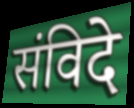
संविदे